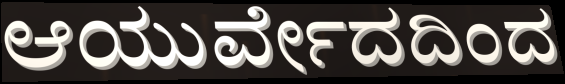
ಆಯುರ್ವೇದದಿಂದ